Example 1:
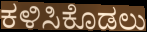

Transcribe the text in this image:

ಕಳಿಸಿಕೊಡಲು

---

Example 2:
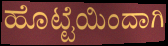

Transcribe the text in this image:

ಹೊಟ್ಟೆಯಿಂದಾಗಿ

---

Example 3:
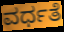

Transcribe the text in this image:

ವರ್ಧತೆ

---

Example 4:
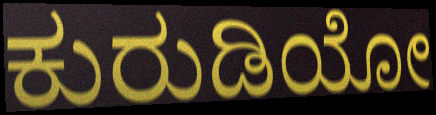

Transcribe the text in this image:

ಕುರುಡಿಯೋ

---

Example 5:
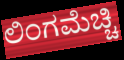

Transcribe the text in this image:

ಲಿಂಗಮೆಚ್ಚಿ